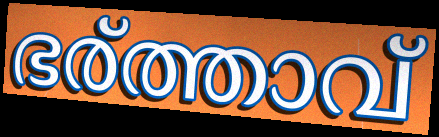
ഭര്ത്താവ്